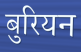
बुरियन